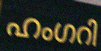
ഹംഗറി